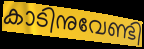
കാടിനുവേണ്ടി